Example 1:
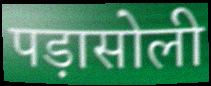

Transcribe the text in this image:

पड़ासोली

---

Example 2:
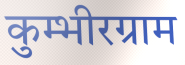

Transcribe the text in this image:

कुम्भीरग्राम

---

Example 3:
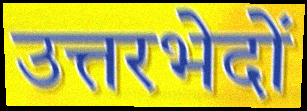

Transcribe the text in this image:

उत्तरभेदों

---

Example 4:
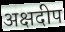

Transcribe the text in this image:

अक्षदीप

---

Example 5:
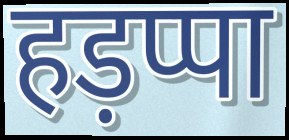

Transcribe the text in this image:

हड़प्पा